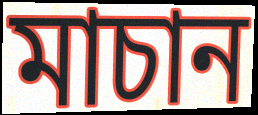
মাচান